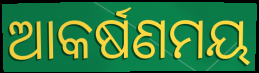
ଆକର୍ଷଣମୟ